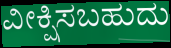
ವೀಕ್ಷಿಸಬಹುದು